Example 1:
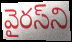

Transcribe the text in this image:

వైరస్‌ని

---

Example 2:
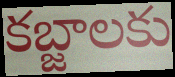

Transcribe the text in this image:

కబ్జాలకు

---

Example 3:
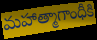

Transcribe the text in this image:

మహాత్మాగాంధీకి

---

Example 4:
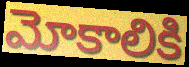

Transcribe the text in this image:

మోకాలికి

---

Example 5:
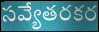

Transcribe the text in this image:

సవ్యేతరకర